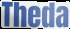
Theda